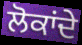
ਲੋਕਾਂਦੇ